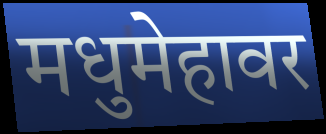
मधुमेहावर